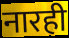
नारही